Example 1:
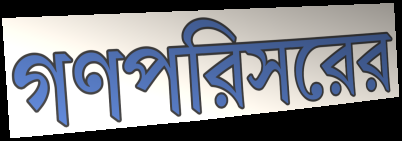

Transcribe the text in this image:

গণপরিসরের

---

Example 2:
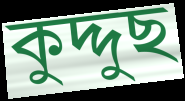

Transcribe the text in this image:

কুদ্দুছ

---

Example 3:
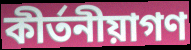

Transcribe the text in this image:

কীর্তনীয়াগণ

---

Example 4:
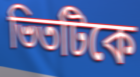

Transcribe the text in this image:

ভিতটিকে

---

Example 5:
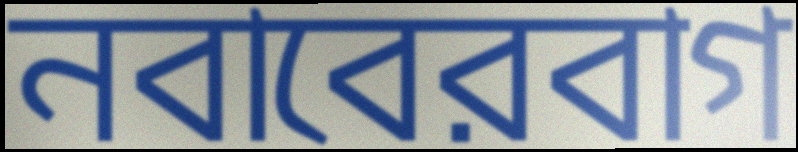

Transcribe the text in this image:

নবাবেরবাগ